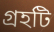
গ্রহটি